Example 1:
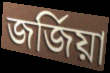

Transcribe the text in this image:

জর্জিয়া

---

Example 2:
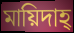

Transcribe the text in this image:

মায়িদাহ্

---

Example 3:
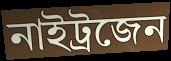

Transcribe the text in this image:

নাইট্রজেন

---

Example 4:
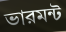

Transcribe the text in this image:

ভারমন্ট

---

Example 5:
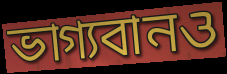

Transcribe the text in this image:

ভাগ্যবানও